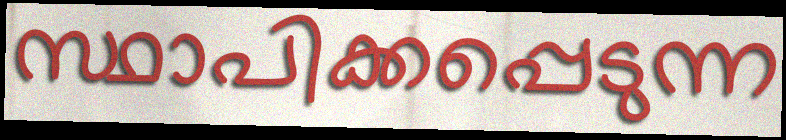
സ്ഥാപിക്കപ്പെടുന്ന